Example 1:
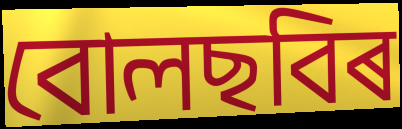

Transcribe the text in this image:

বোলছবিৰ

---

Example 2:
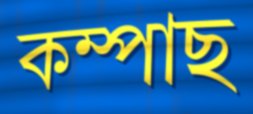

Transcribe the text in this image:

কম্পাছ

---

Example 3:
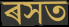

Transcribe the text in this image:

ৰসত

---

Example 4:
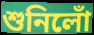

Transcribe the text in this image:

শুনিলোঁ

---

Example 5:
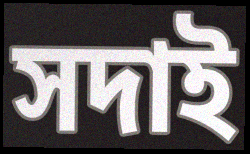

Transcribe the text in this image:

সদাই